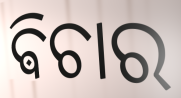
ଵିଚାର